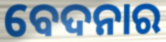
ବେଦନାର